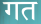
गत